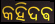
କହିଦଵ